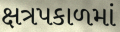
ક્ષત્રપકાળમાં